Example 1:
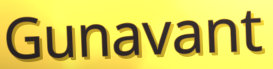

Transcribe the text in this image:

Gunavant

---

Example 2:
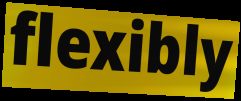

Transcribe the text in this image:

flexibly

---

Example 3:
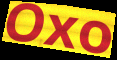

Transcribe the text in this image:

Oxo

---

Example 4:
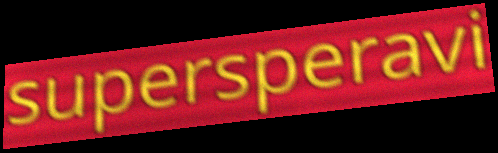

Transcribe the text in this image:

supersperavi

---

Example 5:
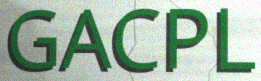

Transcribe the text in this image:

GACPL